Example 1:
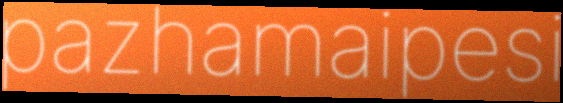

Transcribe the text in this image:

pazhamaipesi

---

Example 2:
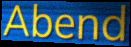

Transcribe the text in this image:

Abend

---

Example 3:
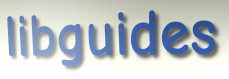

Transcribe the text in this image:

libguides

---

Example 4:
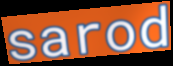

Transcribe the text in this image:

sarod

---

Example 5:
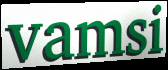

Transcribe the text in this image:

vamsi